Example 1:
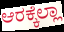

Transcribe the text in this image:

ಆರಕ್ಕೆಲ್ಲಾ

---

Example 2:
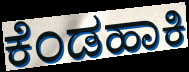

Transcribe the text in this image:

ಕೆಂಡಹಾಕಿ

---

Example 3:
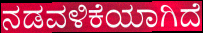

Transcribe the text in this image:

ನಡವಳಿಕೆಯಾಗಿದೆ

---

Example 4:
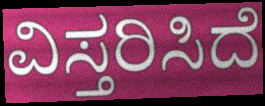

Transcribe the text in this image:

ವಿಸ್ತರಿಸಿದೆ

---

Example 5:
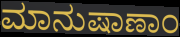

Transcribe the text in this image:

ಮಾನುಷಾಣಾಂ